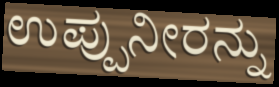
ಉಪ್ಪುನೀರನ್ನು